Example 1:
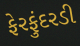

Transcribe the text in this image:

ફેરફુંદરડી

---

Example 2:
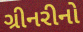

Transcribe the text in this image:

ગ્રીનરીનો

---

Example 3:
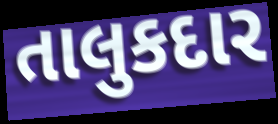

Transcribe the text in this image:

તાલુકદાર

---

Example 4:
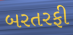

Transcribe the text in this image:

બરતરફી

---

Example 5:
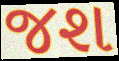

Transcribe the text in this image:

જશ